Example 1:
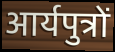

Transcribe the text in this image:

आर्यपुत्रों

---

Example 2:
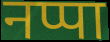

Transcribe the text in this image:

नप्पा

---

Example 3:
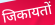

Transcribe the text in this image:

जिकायतों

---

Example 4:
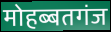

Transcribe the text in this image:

मोहब्बतगंज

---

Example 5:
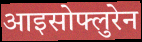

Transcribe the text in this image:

आइसोफ्लुरेन